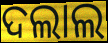
ଦଲାଲ